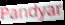
Pandyar